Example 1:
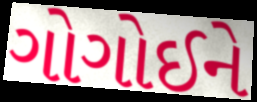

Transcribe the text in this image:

ગોગોઈને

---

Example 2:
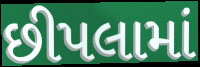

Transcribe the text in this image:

છીપલામાં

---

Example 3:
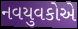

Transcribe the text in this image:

નવયુવકોએ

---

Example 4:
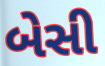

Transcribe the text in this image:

બેસી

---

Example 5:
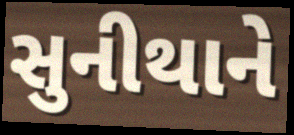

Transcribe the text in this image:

સુનીથાને